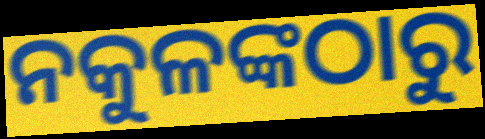
ନକୁଳଙ୍କଠାରୁ